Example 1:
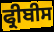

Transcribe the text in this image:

ਫ੍ਰੀਬੀਸ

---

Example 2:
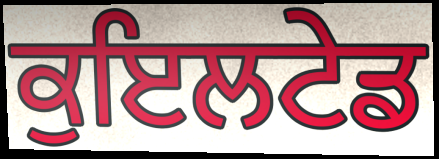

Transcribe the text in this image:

ਕੁਇਲਟੇਡ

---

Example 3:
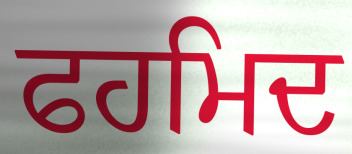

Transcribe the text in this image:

ਫਹਮਿਦ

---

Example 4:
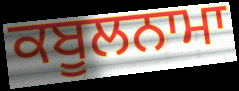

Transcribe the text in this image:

ਕਬੂਲਨਾਮਾ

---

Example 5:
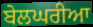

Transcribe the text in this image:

ਬੇਲਘਰੀਆ